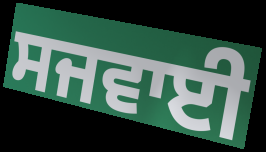
ਸਜਵਾਈ